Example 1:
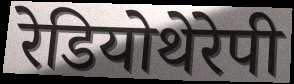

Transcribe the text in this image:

रेडियोथेरेपी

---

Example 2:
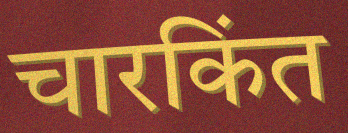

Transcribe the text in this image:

चारकिंत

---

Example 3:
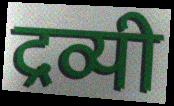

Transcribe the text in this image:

द्रव्यी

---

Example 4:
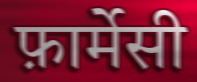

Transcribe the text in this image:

फ़ार्मेसी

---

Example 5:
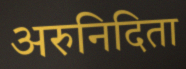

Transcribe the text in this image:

अरुनिदिता